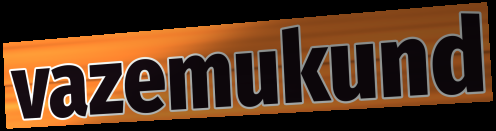
vazemukund